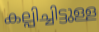
കല്പിച്ചിട്ടുള്ള